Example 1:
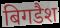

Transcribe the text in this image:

बिगडैश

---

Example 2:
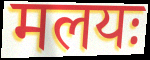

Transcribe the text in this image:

मलयः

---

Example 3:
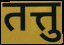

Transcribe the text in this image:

तत्तु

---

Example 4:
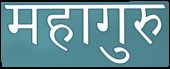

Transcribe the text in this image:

महागुरु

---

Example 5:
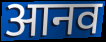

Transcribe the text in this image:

आनव